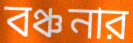
বঞ্চনার